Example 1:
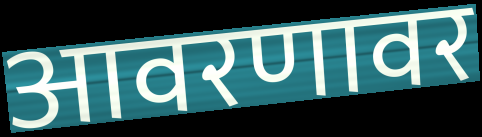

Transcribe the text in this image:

आवरणावर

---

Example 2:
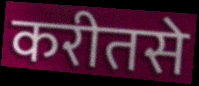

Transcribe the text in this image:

करीतसे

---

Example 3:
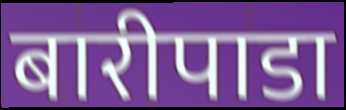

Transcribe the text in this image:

बारीपाडा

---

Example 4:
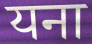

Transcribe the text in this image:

यना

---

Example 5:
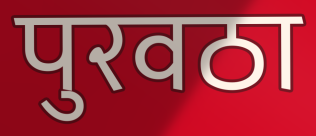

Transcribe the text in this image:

पुरवठा